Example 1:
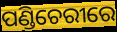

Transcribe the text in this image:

ପଣ୍ଡିଚେରୀରେ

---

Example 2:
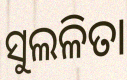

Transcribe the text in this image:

ସୁଲଳିତା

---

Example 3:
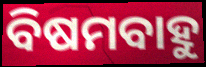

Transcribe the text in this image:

ବିଷମବାହୁ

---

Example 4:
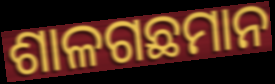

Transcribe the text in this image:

ଶାଳଗଛମାନ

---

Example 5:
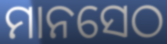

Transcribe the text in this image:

ମାନସେଠ